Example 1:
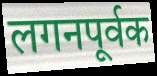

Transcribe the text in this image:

लगनपूर्वक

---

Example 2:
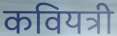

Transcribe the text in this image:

कवियत्री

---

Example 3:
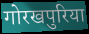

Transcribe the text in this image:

गोरखपुरिया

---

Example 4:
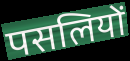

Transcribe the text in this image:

पसलियों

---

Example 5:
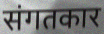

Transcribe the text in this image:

संगतकार